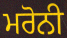
ਮਰੋਨੀ